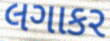
લગાકર